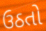
ઉઠતો